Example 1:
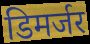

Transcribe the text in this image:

डिमर्जर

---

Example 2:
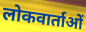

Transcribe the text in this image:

लोकवार्ताओं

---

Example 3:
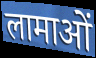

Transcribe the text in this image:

लामाओं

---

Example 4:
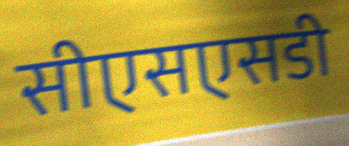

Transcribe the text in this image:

सीएसएसडी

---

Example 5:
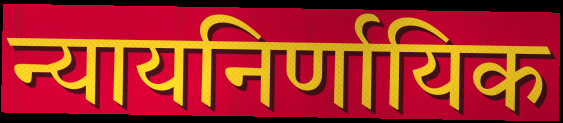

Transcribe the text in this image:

न्यायनिर्णायिक